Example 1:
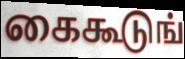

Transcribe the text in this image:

கைகூடுங்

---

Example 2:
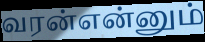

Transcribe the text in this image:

வரன்என்னும்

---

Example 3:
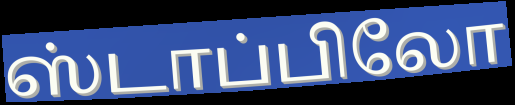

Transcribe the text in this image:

ஸ்டாப்பிலோ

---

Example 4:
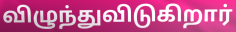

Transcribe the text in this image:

விழுந்துவிடுகிறார்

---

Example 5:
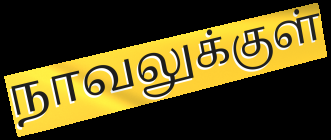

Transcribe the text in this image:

நாவலுக்குள்